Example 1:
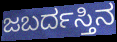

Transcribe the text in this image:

ಜಬರ್ದಸ್ತಿನ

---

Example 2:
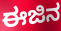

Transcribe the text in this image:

ಈಜಿನ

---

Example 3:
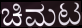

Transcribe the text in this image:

ಚಿಮಟ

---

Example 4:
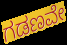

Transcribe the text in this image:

ಗಡಣವೇ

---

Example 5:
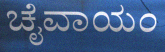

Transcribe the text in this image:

ಚೈವಾಯಂ